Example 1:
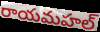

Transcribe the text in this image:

రాయమహల్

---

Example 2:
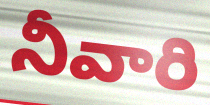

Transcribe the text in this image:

నీవారి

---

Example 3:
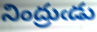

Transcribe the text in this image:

నింద్రుఁడు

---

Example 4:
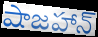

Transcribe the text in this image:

షాజహాన్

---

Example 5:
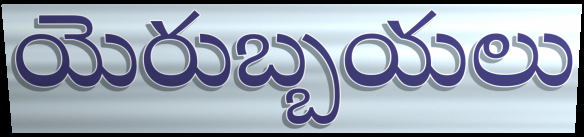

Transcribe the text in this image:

యెరుబ్బయలు